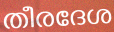
തീരദേശ